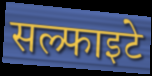
सल्फाइटे